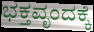
ಭಕ್ತವೃಂದಕ್ಕೆ